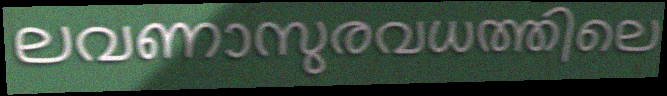
ലവണാസുരവധത്തിലെ